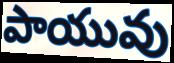
పాయువు